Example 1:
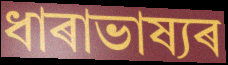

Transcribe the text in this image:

ধাৰাভাষ্যৰ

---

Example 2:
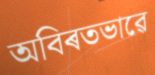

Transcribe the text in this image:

অবিৰতভাৱে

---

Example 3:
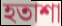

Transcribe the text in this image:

হতাশা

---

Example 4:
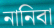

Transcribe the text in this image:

নানিবা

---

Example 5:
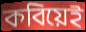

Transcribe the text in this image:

কবিয়েই